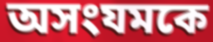
অসংযমকে